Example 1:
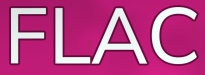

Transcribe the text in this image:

FLAC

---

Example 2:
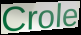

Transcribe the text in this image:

Crole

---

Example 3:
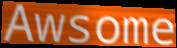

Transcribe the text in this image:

Awsome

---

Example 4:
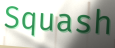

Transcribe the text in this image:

Squash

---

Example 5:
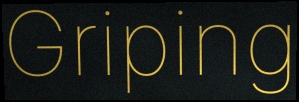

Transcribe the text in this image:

Griping